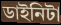
ডাইনিটা